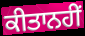
ਕੀਤਾਨਹੀਂ